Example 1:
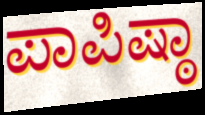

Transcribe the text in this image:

ಪಾಪಿಷ್ಠಾ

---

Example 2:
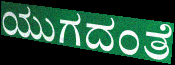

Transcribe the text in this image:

ಯುಗದಂತೆ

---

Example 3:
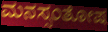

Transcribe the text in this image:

ಮನಸ್ಸಂತೋಷ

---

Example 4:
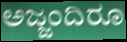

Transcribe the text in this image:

ಅಜ್ಜಂದಿರೂ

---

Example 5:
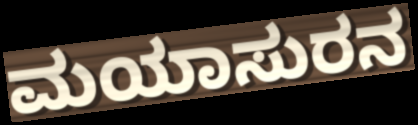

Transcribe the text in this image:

ಮಯಾಸುರನ